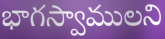
భాగస్వాములని